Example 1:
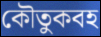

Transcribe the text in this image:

কৌতুকবহ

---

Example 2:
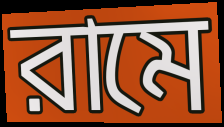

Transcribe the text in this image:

রামে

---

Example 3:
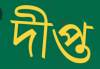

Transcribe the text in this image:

দীপ্ত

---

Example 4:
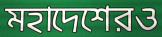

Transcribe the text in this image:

মহাদেশেরও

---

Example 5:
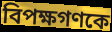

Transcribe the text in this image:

বিপক্ষগণকে